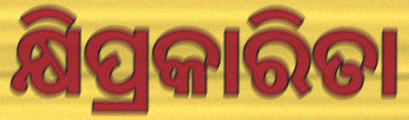
କ୍ଷିପ୍ରକାରିତା